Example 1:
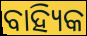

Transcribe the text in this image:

ବାହ୍ୟିକ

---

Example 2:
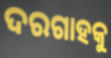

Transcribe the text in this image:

ଦରଗାହକୁ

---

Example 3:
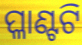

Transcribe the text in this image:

ପ୍ଳାଣ୍ଟଟି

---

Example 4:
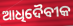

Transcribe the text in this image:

ଆଧିଦୈବୀକ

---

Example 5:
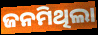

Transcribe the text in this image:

ଜନମିଥିଲା